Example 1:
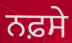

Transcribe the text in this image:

ਨਫ਼ਸੇ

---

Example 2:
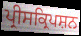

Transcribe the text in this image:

ਪ੍ਰੀਸਕ੍ਰਿਪਸ਼ਨ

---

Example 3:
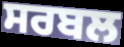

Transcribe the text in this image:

ਸਰਬਲ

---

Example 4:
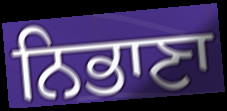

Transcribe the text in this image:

ਨਿਭਾਣਾ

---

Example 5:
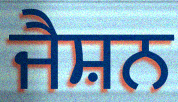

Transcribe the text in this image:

ਜੈਸ਼ਨ